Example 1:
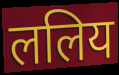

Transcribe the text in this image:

ललिय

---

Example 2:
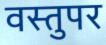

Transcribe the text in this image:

वस्तुपर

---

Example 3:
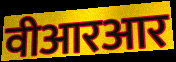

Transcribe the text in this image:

वीआरआर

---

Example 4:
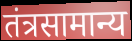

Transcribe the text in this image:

तंत्रसामान्य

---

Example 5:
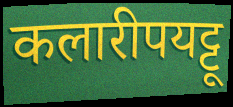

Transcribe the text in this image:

कलारीपयट्टू